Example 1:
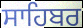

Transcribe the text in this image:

ਸਾਹਿਬਰ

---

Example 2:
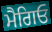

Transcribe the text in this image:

ਮੈਗਿਓ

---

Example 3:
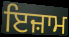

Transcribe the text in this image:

ਇਜ਼ਾਮ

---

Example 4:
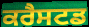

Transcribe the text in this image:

ਕਰੈਸਟਡ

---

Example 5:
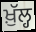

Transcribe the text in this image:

ਖ਼ੁੱਲ੍ਹ